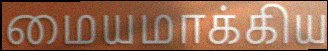
மையமாக்கிய